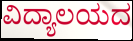
ವಿದ್ಯಾಲಯದ